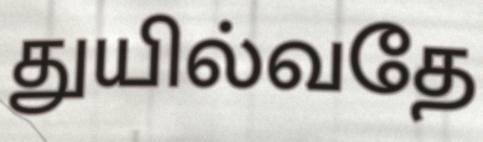
துயில்வதே